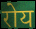
रोय